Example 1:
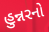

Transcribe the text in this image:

હુન્નરનો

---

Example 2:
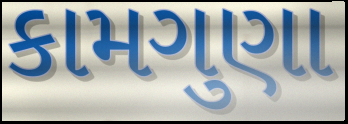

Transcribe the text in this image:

કામગુણા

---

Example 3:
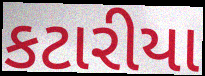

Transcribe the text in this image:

કટારીયા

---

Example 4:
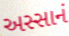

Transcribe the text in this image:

અસ્સાનં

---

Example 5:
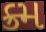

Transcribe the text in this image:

ક્ર્મ